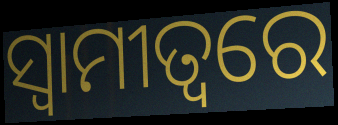
ସ୍ୱାମୀତ୍ୱରେ